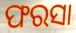
ଫରସା